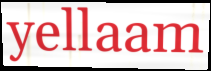
yellaam